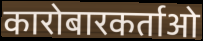
कारोबारकर्ताओ